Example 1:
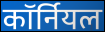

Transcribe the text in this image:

कॉर्नियल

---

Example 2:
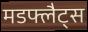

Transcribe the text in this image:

मडफ्लैट्स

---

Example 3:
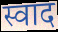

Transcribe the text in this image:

स्वाद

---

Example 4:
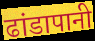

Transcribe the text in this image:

ढांडापानी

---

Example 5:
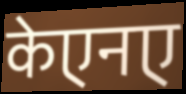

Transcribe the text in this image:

केएनए